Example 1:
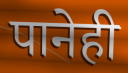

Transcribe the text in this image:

पानेही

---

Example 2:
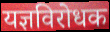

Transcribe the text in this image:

यज्ञविरोधक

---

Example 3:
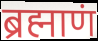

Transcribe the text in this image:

ब्रह्माणं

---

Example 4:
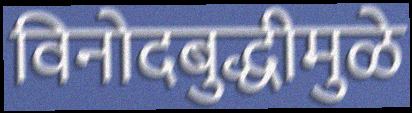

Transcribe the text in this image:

विनोदबुद्धीमुळे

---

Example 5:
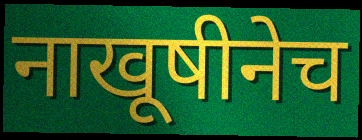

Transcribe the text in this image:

नाखूषीनेच